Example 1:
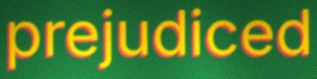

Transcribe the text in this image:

prejudiced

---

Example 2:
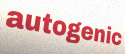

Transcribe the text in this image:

autogenic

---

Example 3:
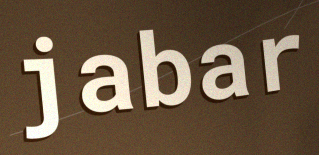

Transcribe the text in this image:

jabar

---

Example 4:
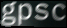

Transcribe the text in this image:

gpsc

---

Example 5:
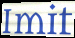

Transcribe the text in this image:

Imit